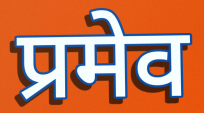
प्रमेव